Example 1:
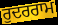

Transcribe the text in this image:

ਰੁਦਰਰਾਮ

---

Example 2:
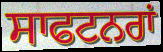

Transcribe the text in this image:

ਸਾਫਟਨਰਾਂ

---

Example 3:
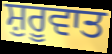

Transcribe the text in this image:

ਸ਼ੁਰੂਵਾਤ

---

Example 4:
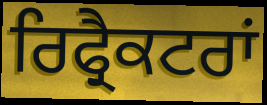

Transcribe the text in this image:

ਰਿਫ੍ਰੈਕਟਰਾਂ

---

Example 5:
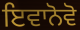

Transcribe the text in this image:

ਇਵਾਨੋਵੋ